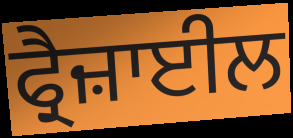
ਫ੍ਰੈਜ਼ਾਈਲ